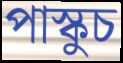
পাস্কুচ